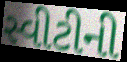
સ્વીટીની